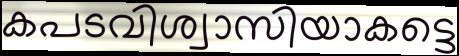
കപടവിശ്വാസിയാകട്ടെ